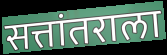
सत्तांतराला